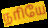
நரியே